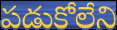
పడుకోలేని